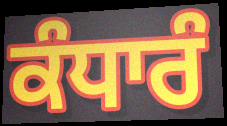
ਕੰਧਾਰੰ